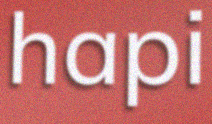
hapi